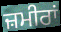
ਜ਼ਮੀਰਾਂ